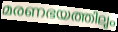
മരണഭയത്തിലും